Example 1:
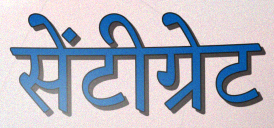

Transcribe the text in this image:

सेंटीग्रेट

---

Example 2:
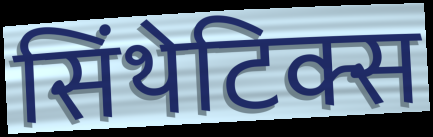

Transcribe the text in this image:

सिंथेटिक्स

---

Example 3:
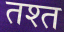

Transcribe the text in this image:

तश्त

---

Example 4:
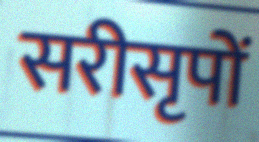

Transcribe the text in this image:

सरीसृपों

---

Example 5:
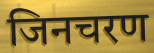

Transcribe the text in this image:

जिनचरण